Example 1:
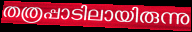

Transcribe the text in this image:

തത്രപ്പാടിലായിരുന്നു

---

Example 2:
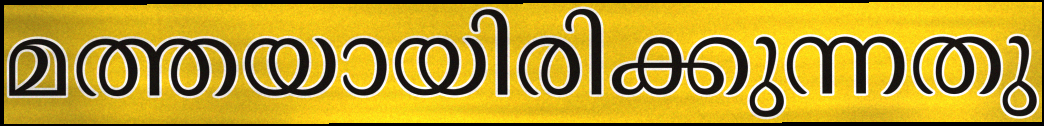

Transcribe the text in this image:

മത്തയായിരിക്കുന്നതു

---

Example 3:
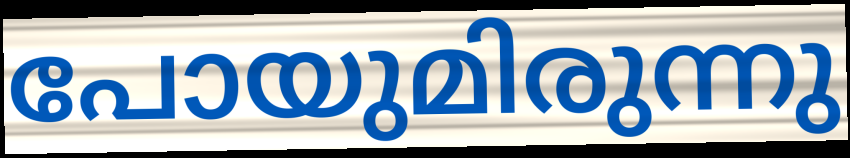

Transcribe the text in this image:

പോയുമിരുന്നു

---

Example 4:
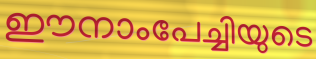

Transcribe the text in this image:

ഈനാംപേച്ചിയുടെ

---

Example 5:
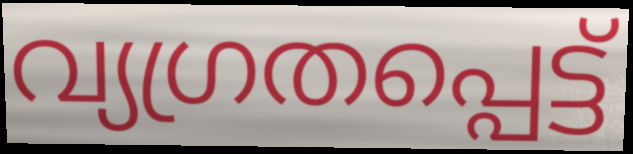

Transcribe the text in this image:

വ്യഗ്രതപ്പെട്ട്